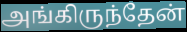
அங்கிருந்தேன்